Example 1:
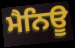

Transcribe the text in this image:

ਮੈਨਿਊ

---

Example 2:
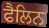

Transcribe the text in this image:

ਫੈਲਿਨ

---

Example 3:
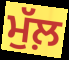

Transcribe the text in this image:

ਮੁੱਲ਼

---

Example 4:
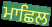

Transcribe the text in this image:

ਮਾਛਿਲ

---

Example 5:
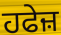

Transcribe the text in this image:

ਹਫੇਜ਼